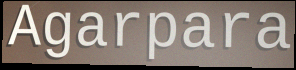
Agarpara